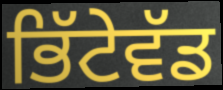
ਭਿੱਟੇਵੱਡ